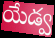
యేడ్వ